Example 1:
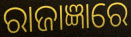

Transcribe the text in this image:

ରାଜାଜ୍ଞାରେ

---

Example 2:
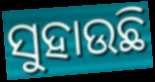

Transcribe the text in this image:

ସୁହାଉଛି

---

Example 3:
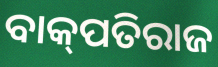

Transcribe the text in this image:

ବାକ୍‌ପତିରାଜ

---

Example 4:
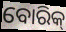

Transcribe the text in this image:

ବୋରିକ୍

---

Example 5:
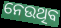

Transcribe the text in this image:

ନେଉଥିବ